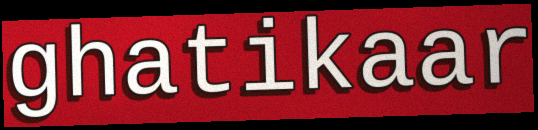
ghatikaar